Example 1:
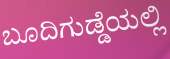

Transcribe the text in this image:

ಬೂದಿಗುಡ್ಡೆಯಲ್ಲಿ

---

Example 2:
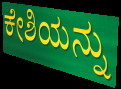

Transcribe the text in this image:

ಕೇಶಿಯನ್ನು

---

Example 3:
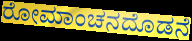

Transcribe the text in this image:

ರೋಮಾಂಚನದೊಡನೆ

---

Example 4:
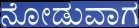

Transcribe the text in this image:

ನೋಡುವಾಗ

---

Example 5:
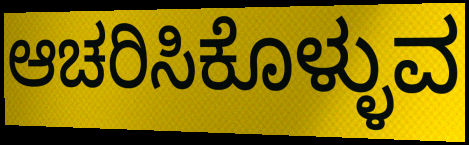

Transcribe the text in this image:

ಆಚರಿಸಿಕೊಳ್ಳುವ